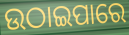
ଉଠାଇପାରେ